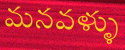
మనవళ్ళు